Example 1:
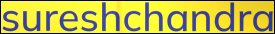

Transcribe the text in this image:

sureshchandra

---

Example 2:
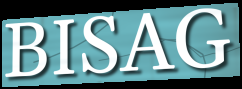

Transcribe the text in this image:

BISAG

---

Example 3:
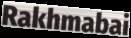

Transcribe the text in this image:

Rakhmabai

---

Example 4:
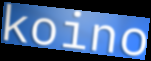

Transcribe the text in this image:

koino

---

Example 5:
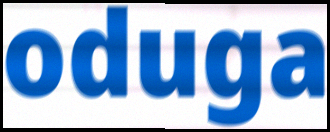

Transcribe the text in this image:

oduga